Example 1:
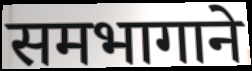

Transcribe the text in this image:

समभागाने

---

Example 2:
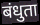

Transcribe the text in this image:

बंधुता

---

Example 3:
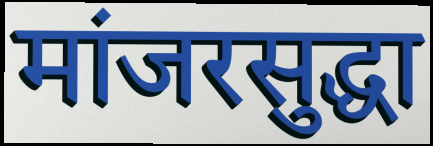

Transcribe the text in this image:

मांजरसुद्धा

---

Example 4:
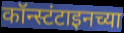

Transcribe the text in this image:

कॉन्स्टंटाइनच्या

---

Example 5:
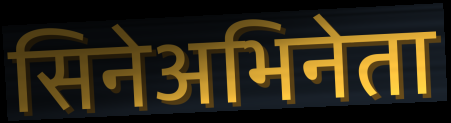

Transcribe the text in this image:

सिनेअभिनेता